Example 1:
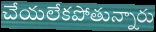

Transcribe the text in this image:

చేయలేకపోతున్నారు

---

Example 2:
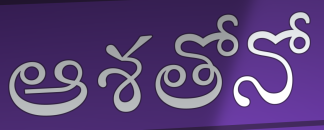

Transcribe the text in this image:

ఆశతోనో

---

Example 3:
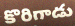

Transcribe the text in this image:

కొరిగాడు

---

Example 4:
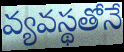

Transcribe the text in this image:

వ్యవస్థతోనే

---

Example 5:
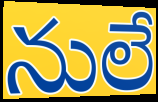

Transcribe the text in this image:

నులే